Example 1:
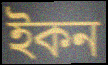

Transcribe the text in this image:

ইকন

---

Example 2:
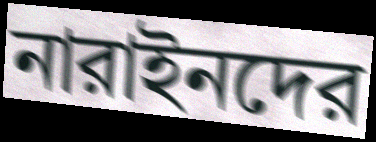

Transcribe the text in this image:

নারাইনদের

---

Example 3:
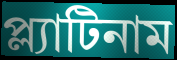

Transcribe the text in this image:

প্ল্যাটিনাম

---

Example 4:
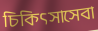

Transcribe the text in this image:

চিকিৎসাসেবা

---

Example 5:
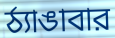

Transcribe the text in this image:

ঠ্যাঙাবার